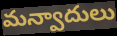
మన్వాదులు